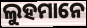
ଲୁହମାନେ